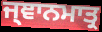
ਜ੍ਞਾਨਮਾਤ੍ਰ